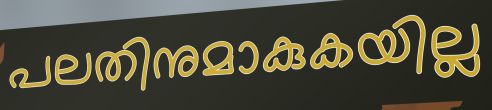
പലതിനുമാകുകയില്ല